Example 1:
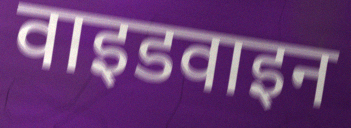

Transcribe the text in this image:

वाइडवाइन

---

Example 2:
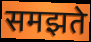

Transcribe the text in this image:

समझते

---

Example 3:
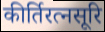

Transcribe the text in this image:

कीर्तिरत्नसूरि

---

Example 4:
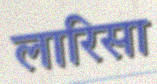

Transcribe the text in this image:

लारिसा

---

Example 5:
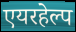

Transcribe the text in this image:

एयरहेल्प